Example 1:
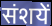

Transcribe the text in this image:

संशयें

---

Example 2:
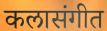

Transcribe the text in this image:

कलासंगीत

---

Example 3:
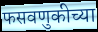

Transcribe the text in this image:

फसवणुकीच्या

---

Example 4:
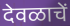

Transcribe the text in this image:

देवळाचें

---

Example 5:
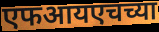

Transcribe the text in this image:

एफआयएचच्या